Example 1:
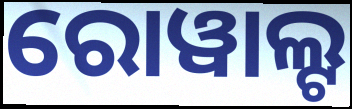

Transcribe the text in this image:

ରୋୱାଲ୍ଟ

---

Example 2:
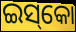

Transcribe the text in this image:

ଇସ୍‌କୋ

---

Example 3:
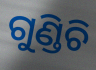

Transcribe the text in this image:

ଗୁଣ୍ଡିଚି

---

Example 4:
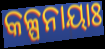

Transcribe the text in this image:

କଳ୍ପନାୟାଃ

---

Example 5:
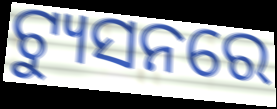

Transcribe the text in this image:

ଟ୍ୟୁସନରେ